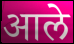
आले